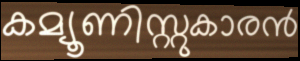
കമ്യൂണിസ്റ്റുകാരൻ